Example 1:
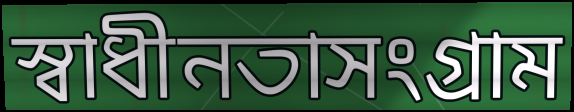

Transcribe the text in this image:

স্বাধীনতাসংগ্রাম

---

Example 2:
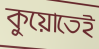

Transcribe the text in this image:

কুয়োতেই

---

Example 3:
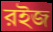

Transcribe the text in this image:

রইজ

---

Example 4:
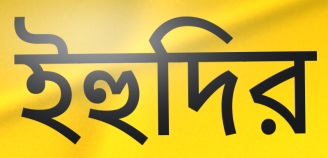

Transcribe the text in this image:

ইহুদির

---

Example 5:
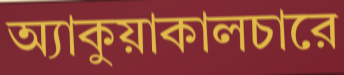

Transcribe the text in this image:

অ্যাকুয়াকালচারে